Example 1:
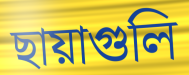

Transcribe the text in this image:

ছায়াগুলি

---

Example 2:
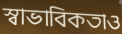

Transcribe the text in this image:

স্বাভাবিকতাও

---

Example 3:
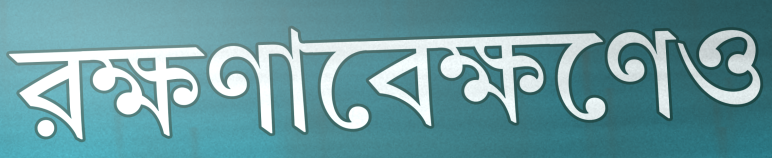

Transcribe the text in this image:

রক্ষণাবেক্ষণেও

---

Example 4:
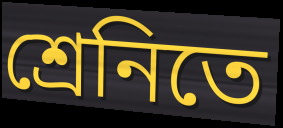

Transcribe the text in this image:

শ্রেনিতে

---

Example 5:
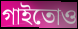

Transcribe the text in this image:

গাইতোও